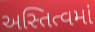
અસ્તિત્વમાં